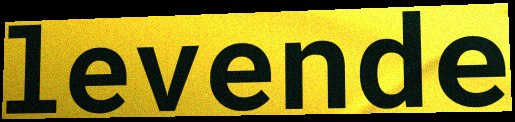
levende